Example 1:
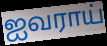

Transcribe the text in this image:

ஐவராய்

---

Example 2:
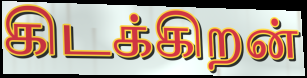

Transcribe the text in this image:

கிடக்கிறன்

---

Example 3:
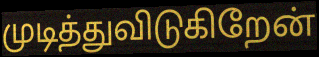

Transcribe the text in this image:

முடித்துவிடுகிறேன்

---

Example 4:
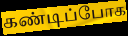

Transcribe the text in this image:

கண்டிப்போக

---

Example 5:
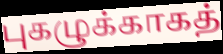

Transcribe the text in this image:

புகழுக்காகத்